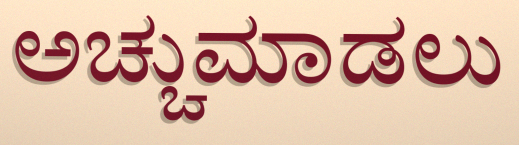
ಅಚ್ಚುಮಾಡಲು